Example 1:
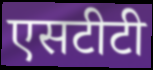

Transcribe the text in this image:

एसटीटी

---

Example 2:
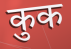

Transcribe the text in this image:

कुक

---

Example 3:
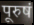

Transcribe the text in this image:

पूरुषं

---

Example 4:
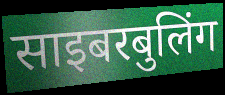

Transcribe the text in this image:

साइबरबुलिंग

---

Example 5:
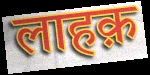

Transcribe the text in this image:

लाहक़